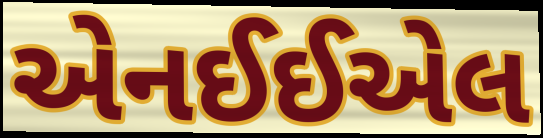
એનઈઈએલ